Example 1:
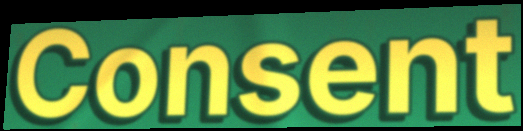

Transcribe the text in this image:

Consent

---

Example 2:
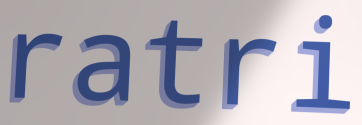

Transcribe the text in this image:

ratri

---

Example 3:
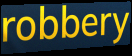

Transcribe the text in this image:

robbery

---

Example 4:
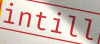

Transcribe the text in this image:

intill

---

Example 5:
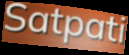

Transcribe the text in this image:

Satpati